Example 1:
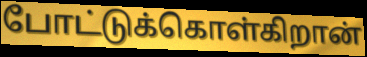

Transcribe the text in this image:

போட்டுக்கொள்கிறான்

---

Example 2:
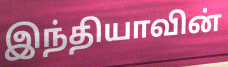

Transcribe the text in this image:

இந்தியாவின்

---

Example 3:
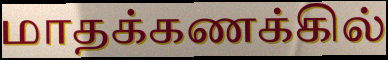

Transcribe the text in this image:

மாதக்கணக்கில்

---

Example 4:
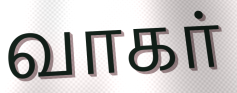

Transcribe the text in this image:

வாகர்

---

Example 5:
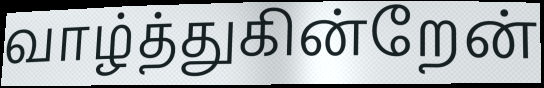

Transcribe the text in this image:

வாழ்த்துகின்றேன்